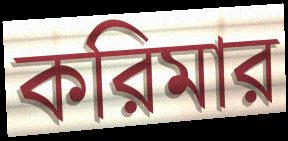
করিমার